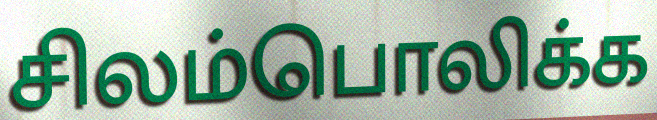
சிலம்பொலிக்க